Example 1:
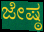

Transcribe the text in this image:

ಜೇಷ್ಠ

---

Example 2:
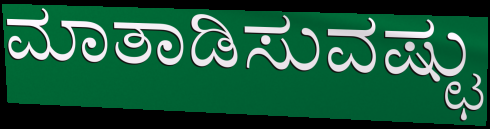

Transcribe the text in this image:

ಮಾತಾಡಿಸುವಷ್ಟು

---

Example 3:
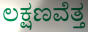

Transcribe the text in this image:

ಲಕ್ಷಣವೆತ್ತ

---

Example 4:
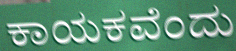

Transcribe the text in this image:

ಕಾಯಕವೆಂದು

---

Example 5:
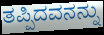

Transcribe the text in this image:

ತಪ್ಪಿದವನನ್ನು